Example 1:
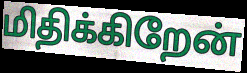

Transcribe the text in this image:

மிதிக்கிறேன்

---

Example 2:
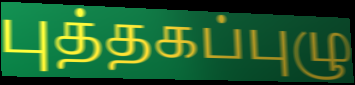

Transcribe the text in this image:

புத்தகப்புழு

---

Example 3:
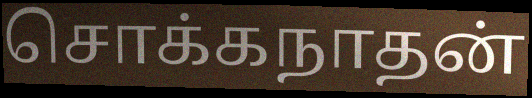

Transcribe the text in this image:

சொக்கநாதன்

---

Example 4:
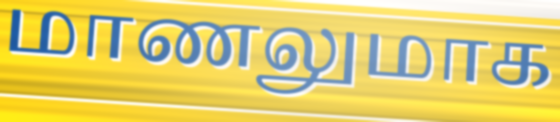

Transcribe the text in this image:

மாணலுமாக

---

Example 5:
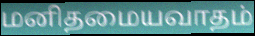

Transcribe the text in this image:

மனிதமையவாதம்